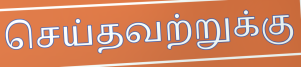
செய்தவற்றுக்கு